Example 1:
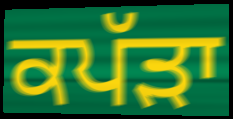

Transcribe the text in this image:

ਕਪੱੜਾ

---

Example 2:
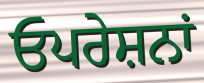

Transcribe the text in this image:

ਓਪਰੇਸ਼ਨਾਂ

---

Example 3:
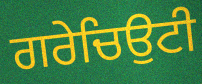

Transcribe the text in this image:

ਗਰੇਚਿਉਟੀ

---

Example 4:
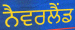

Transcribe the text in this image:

ਨੈਵਰਲੈਂਡ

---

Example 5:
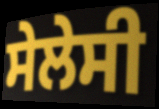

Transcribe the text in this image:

ਸੇਲੇਸੀ